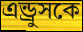
এন্ড্রুসকে